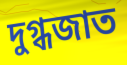
দুগ্ধজাত